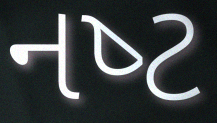
નષ્‍ટ